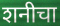
शनीचा